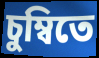
চুম্বিতে